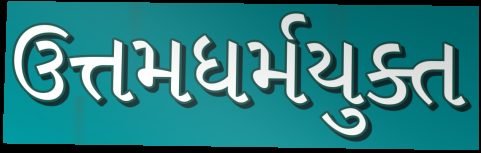
ઉત્તમધર્મયુક્ત